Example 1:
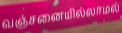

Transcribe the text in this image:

வஞ்சனையில்லாமல்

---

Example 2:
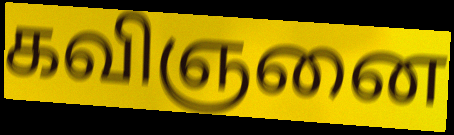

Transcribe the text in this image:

கவிஞனை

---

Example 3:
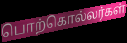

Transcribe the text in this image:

பொற்கொல்லர்கள்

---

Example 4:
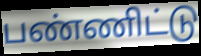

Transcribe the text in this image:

பண்ணிட்டு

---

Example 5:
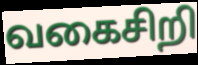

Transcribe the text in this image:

வகைசிறி